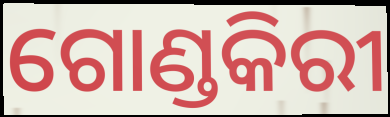
ଗୋଣ୍ଡକିରୀ